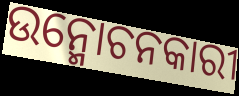
ଉନ୍ମୋଚନକାରୀ